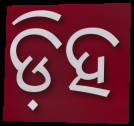
ଡ଼ିହ